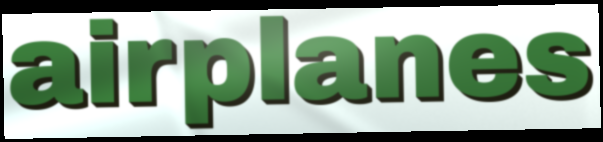
airplanes